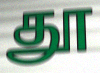
தூ